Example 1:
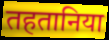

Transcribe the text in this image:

तहतानिया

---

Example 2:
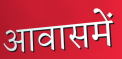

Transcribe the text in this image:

आवासमें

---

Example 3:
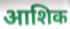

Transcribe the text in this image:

आशिक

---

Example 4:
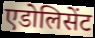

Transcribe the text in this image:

एडोलिसेंट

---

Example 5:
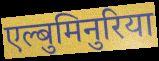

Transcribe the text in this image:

एल्बुमिनुरिया